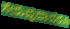
ಸೇರುವುದಾದರೂ